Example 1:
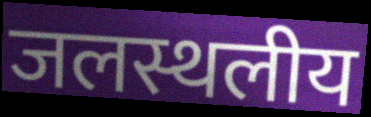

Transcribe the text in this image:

जलस्थलीय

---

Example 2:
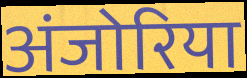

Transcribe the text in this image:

अंजोरिया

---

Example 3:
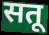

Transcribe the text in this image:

सतू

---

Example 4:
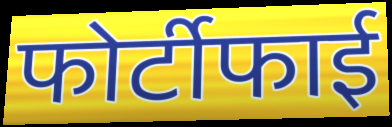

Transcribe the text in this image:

फोर्टीफाई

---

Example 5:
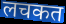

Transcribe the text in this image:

लचकत